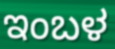
ಇಂಬಳ